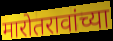
मारोतरावांच्या